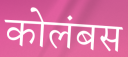
कोलंबस